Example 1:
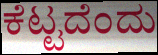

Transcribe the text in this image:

ಕೆಟ್ಟದೆಂದು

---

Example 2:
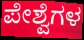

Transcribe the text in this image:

ಪೇಶ್ವೆಗಳ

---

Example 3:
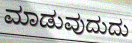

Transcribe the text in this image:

ಮಾಡುವುದುದು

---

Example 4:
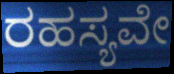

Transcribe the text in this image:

ರಹಸ್ಯವೇ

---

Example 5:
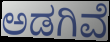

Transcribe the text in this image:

ಅಡಗಿವೆ